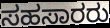
ಸಹಸಾರರು